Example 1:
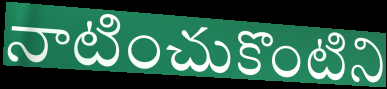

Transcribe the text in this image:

నాటించుకొంటిని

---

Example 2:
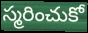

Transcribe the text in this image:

స్మరించుకో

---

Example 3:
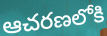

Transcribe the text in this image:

ఆచరణలోకి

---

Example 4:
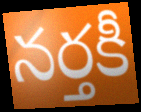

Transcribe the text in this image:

నర్తకీ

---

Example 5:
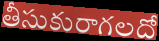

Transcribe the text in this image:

తీసుకురాగలదో